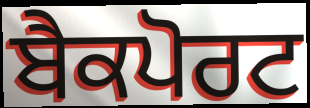
ਬੈਕਪੋਰਟ